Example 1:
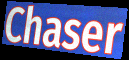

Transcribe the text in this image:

Chaser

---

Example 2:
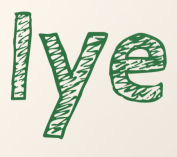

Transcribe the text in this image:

Iye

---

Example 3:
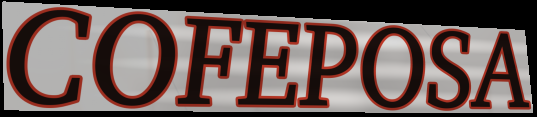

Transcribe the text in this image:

COFEPOSA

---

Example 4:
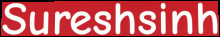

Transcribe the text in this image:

Sureshsinh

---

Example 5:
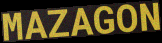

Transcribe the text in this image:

MAZAGON